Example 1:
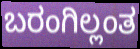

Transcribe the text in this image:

ಬರಂಗಿಲ್ಲಂತ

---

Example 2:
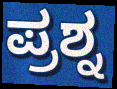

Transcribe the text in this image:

ಪ್ರಶ್ನ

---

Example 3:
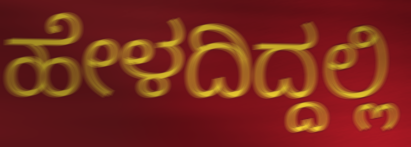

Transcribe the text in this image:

ಹೇಳದಿದ್ದಲ್ಲಿ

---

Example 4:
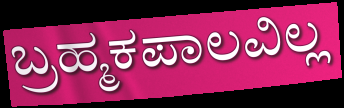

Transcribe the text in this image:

ಬ್ರಹ್ಮಕಪಾಲವಿಲ್ಲ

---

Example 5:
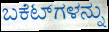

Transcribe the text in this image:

ಬಕೆಟ್‌ಗಳನ್ನು